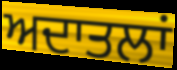
ਅਦਾਤਲਾਂ